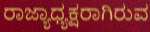
ರಾಜ್ಯಾಧ್ಯಕ್ಷರಾಗಿರುವ